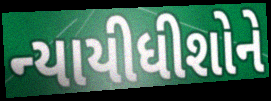
ન્યાયીધીશોને